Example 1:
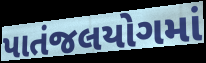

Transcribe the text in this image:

પાતંજલયોગમાં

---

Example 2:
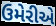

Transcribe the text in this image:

ઉમેરીએ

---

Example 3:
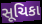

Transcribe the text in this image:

સૂચિકા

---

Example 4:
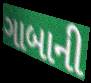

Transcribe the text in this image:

ગાબાની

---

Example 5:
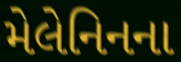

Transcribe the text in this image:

મેલેનિનના